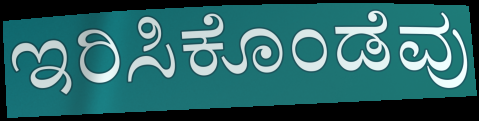
ಇರಿಸಿಕೊಂಡೆವು